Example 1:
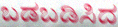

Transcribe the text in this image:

ಬಡಬಡಿಸಿದ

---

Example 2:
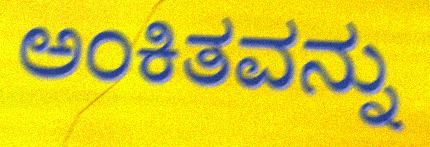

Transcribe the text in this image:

ಅಂಕಿತವನ್ನು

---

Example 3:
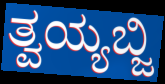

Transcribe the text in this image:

ತ್ವಯ್ಯಬ್ಜಿ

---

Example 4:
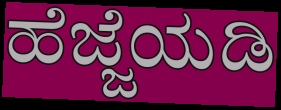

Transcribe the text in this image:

ಹೆಜ್ಜೆಯಡಿ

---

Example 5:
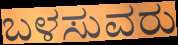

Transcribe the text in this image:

ಬಳಸುವರು